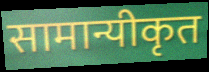
सामान्यीकृत